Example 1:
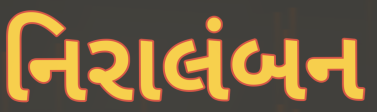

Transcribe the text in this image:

નિરાલંબન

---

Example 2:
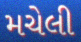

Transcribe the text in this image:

મચેલી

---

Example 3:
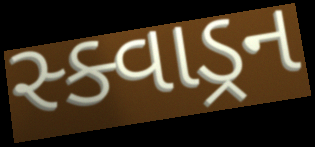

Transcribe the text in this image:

સ્ક્વાડ્રન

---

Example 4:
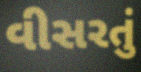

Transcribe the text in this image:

વીસરતું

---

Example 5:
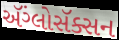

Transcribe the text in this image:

ઍંગ્લોસૅક્સન